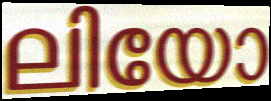
ലിയോ